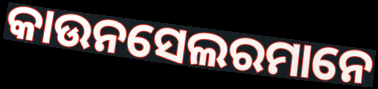
କାଉନସେଲରମାନେ